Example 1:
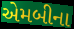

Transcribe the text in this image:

એમબીના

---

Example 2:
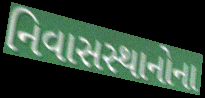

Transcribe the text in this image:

નિવાસસ્થાનોના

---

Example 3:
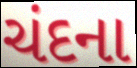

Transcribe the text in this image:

ચંદના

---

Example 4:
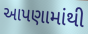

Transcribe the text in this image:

આપણામાંથી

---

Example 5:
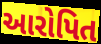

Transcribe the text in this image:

આરોપિત